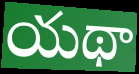
యథా